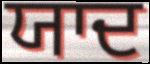
ਯਾਦ